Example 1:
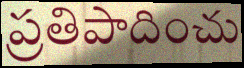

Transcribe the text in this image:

ప్రతిపాదించు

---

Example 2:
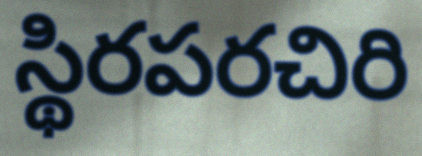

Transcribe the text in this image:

స్థిరపరచిరి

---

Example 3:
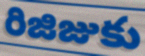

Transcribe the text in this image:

రిజిజుకు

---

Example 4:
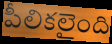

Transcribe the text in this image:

పీలికలైంది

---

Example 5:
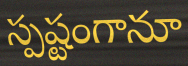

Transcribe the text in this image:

స్పష్టంగానూ